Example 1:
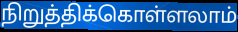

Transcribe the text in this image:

நிறுத்திக்கொள்ளலாம்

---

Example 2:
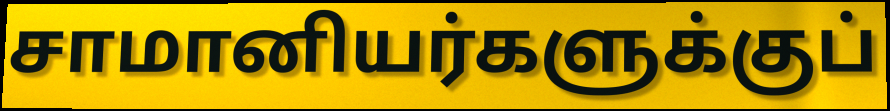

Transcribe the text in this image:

சாமானியர்களுக்குப்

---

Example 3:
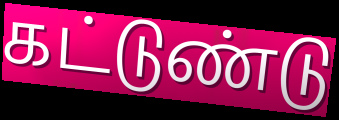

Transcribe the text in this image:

கட்டுண்டு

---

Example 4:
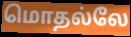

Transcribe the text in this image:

மொதல்லே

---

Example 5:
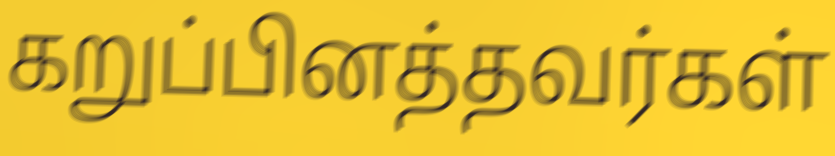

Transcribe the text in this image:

கறுப்பினத்தவர்கள்